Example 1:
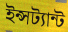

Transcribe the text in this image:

ইন্সট্যান্ট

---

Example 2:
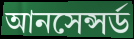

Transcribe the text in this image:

আনসেন্সর্ড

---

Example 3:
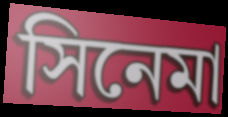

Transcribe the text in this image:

সিনেমা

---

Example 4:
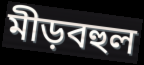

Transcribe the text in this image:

মীড়বহুল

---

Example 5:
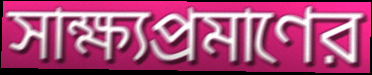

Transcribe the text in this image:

সাক্ষ্যপ্রমাণের